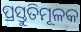
ପ୍ରସ୍ତୁତିମୂଳକ